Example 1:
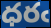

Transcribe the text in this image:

ధరఁ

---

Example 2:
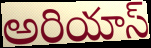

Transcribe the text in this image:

అరియాస్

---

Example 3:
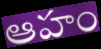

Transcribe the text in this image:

ఆహం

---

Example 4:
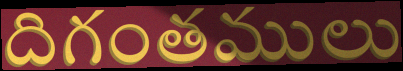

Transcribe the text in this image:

దిగంతములు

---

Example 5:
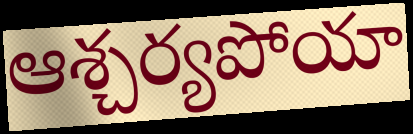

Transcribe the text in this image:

ఆశ్చర్యపోయా